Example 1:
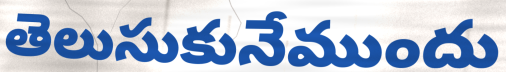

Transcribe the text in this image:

తెలుసుకునేముందు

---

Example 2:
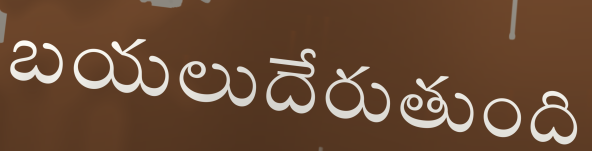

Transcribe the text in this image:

బయలుదేరుతుంది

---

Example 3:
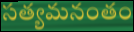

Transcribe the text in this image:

సత్యమనంతం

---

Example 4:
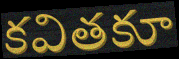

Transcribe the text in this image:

కవితకూ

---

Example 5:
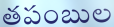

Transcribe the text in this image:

తపంబుల